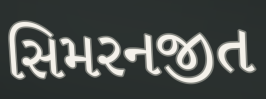
સિમરનજીત